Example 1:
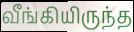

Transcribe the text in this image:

வீங்கியிருந்த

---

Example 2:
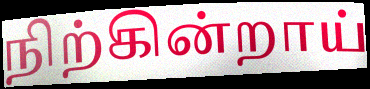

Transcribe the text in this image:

நிற்கின்றாய்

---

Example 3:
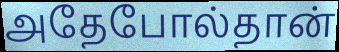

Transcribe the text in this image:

அதேபோல்தான்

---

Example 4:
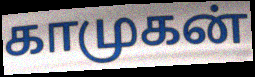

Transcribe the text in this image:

காமுகன்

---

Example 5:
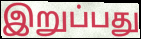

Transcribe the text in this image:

இறுப்பது